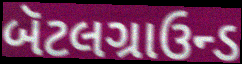
બૅટલગ્રાઉન્ડ